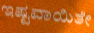
ಇಷ್ಟವಾಯಿತೇ